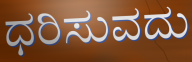
ಧರಿಸುವದು